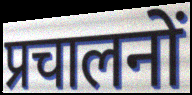
प्रचालनों